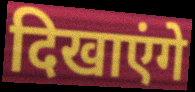
दिखाएंगे